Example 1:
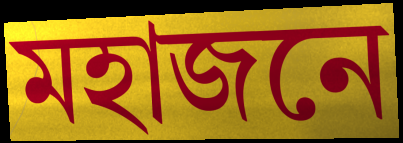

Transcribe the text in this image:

মহাজনে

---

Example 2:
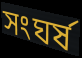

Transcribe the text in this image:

সংঘৰ্ষ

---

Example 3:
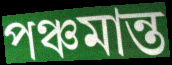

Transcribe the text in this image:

পঞ্চমান্ত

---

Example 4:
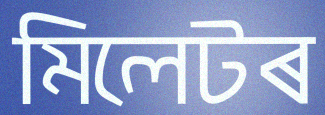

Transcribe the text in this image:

মিলেটৰ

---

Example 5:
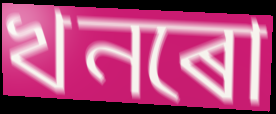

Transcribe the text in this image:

খনৰো